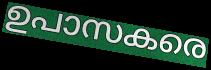
ഉപാസകരെ